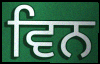
ਵਿਨ